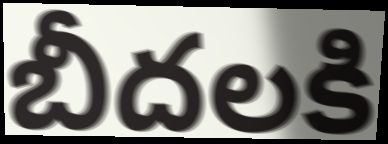
బీదలకి